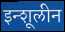
इन्शूलीन